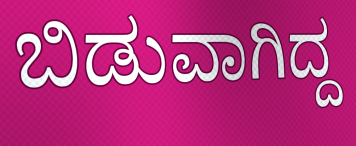
ಬಿಡುವಾಗಿದ್ದ